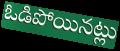
ఓడిపోయినట్లు